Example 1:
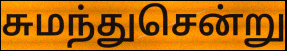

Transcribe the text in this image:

சுமந்துசென்று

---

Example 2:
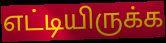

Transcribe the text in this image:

எட்டியிருக்க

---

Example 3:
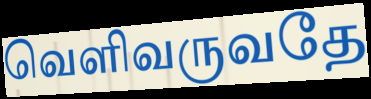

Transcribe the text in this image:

வெளிவருவதே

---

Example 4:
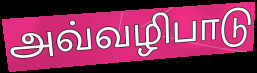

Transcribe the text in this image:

அவ்வழிபாடு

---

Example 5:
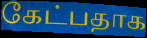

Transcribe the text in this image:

கேட்பதாக